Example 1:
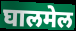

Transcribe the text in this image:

घालमेल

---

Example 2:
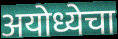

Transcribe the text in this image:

अयोध्येचा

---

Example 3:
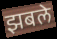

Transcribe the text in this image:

झबले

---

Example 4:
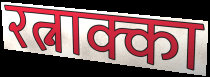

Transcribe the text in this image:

रत्नाक्का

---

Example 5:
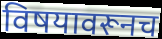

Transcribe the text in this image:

विषयावरूनच